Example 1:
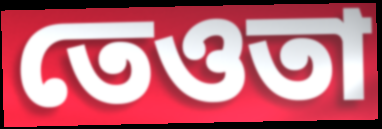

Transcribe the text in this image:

তেওতা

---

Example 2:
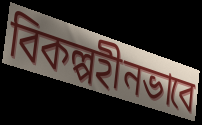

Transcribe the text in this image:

বিকল্পহীনভাবে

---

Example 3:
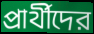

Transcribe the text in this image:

প্রার্থীদের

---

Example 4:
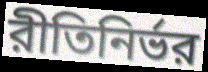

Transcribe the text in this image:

রীতিনির্ভর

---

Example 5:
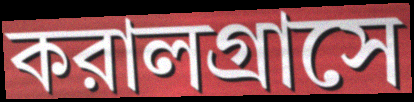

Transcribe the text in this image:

করালগ্রাসে